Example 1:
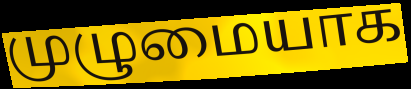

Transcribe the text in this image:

முழுமையாக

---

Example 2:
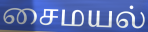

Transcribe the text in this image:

சைமயல்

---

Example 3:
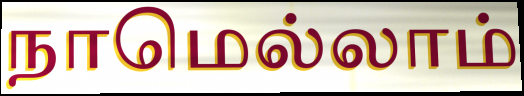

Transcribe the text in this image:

நாமெல்லாம்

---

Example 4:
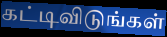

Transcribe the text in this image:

கட்டிவிடுங்கள்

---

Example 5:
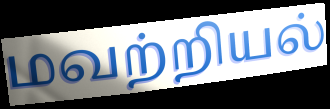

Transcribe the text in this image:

மவற்றியல்